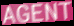
AGENT